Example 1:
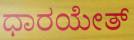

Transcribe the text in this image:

ಧಾರಯೇತ್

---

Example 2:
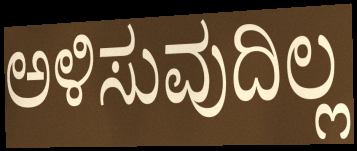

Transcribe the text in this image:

ಅಳಿಸುವುದಿಲ್ಲ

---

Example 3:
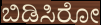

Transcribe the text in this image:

ಬಿಡಿಸಿರೋ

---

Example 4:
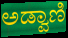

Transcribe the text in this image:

ಅಡ್ವಾಣಿ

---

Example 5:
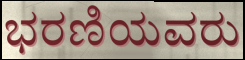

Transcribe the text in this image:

ಭರಣಿಯವರು